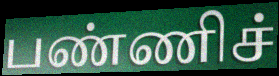
பண்ணிச்